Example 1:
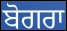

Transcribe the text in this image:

ਬੋਗਰਾ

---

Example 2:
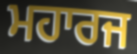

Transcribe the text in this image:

ਮਹਾਰਜ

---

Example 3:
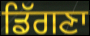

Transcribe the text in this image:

ਡਿੱਗਣਾ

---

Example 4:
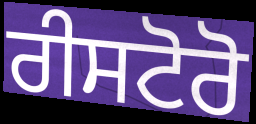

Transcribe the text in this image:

ਰੀਸਟੋਰੋ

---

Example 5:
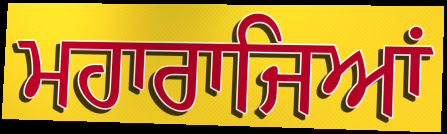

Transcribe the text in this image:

ਮਹਾਰਾਜਿਆਂ